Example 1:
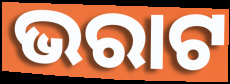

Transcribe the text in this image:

ଭରାଟ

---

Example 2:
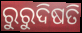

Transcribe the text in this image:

ରୁରୁଦିଷତି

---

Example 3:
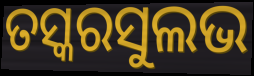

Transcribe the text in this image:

ତସ୍କରସୁଲଭ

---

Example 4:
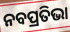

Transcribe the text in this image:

ନବପ୍ରତିଭା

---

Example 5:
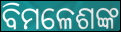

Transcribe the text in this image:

ବିମଳେଶଙ୍କ